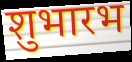
शुभारभ